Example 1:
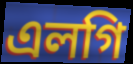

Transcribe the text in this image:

এলগি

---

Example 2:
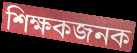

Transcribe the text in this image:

শিক্ষকজনক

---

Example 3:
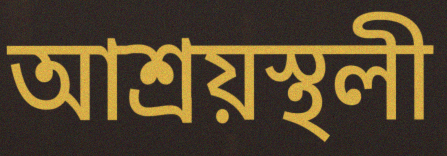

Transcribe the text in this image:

আশ্ৰয়স্থলী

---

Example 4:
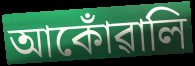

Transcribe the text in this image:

আকোঁৱালি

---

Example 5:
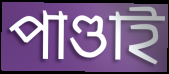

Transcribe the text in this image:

পাণ্ডাই